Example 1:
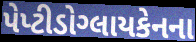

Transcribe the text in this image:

પેપ્ટીડોગ્લાયકેનના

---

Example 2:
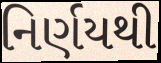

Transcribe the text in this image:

નિર્ણયથી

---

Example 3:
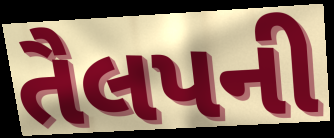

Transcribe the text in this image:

તૈલપની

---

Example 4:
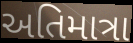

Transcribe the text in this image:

અતિમાત્રા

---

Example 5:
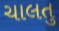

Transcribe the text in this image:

ચાલતુ